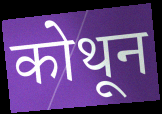
कोथून